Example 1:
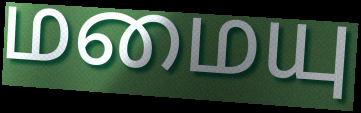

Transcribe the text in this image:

மமையு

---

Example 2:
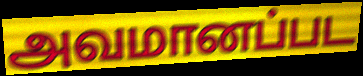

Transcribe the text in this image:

அவமானப்பட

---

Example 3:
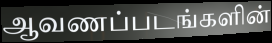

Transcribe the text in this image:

ஆவணப்படங்களின்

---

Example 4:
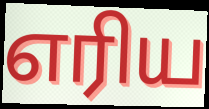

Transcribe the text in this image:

எரிய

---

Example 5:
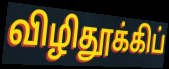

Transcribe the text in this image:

விழிதூக்கிப்